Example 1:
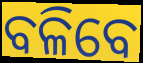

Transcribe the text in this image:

ବଳିବେ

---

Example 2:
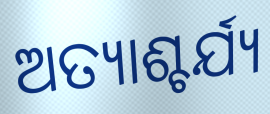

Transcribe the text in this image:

ଅତ୍ୟାଶ୍ଚର୍ଯ୍ୟ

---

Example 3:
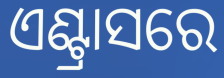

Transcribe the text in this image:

ଏଣ୍ଟ୍ରାସରେ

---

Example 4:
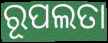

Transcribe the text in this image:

ରୂପଲତା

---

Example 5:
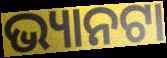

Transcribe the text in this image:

ଭ୍ୟାନଟା